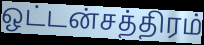
ஒட்டன்சத்திரம்